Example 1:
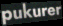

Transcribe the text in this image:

pukurer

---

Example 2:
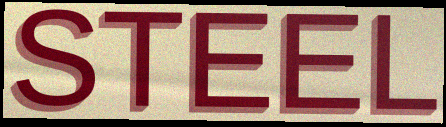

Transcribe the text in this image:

STEEL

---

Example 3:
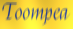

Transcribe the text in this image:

Toompea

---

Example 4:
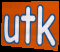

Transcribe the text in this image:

utk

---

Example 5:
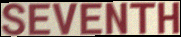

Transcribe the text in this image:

SEVENTH